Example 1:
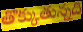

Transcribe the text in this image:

తొక్కుతున్నది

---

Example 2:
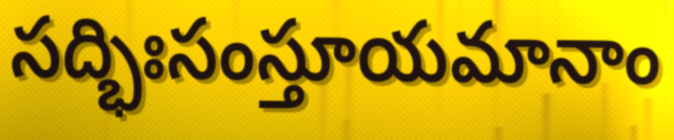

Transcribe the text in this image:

సద్భిఃసంస్తూయమానాం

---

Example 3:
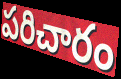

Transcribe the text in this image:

పరిచారం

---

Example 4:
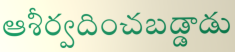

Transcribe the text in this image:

ఆశీర్వదించబడ్డాడు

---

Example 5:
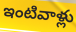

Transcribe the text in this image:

ఇంటివాళ్లు